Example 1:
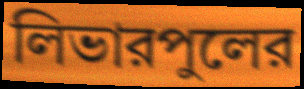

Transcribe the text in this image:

লিভারপুলের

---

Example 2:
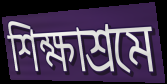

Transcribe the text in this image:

শিক্ষাশ্রমে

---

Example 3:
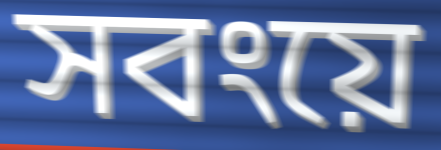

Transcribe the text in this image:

সবংয়ে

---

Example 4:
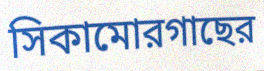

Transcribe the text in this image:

সিকামোরগাছের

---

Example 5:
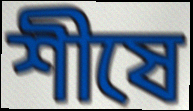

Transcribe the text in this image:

শীষে